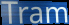
Tram